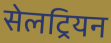
सेलट्रियन